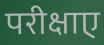
परीक्षाए